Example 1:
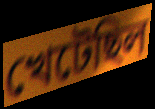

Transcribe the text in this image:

খেটেছিল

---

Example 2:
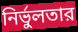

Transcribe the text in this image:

নির্ভুলতার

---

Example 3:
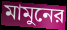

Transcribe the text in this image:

মামুনের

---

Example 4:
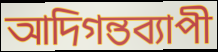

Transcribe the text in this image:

আদিগন্তব্যাপী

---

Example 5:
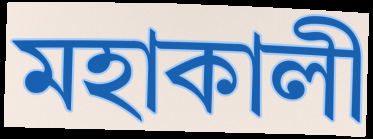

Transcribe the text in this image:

মহাকালী